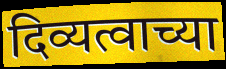
दिव्यत्वाच्या